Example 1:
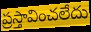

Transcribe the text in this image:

ప్రస్తావించలేదు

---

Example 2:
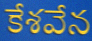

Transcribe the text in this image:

కేశవేన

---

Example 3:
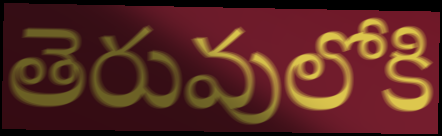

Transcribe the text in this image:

తెరువులోకి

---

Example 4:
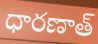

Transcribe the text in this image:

ధారణాత్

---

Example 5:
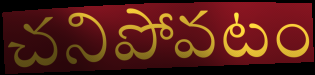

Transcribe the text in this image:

చనిపోవటం